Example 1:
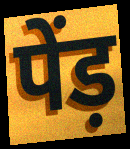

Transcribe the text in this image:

पेंड़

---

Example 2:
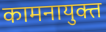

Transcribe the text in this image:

कामनायुक्त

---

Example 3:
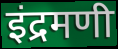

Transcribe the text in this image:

इंद्रमणी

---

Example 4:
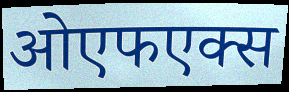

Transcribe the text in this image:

ओएफएक्स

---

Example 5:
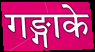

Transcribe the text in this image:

गङ्गाके